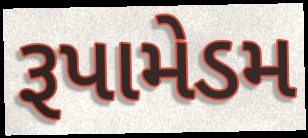
રૂપામેડમ